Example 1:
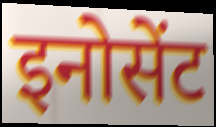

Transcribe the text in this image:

इनोसेंट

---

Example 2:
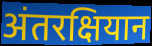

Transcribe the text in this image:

अंतरक्षियान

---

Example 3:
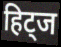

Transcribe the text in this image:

हिट्ज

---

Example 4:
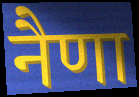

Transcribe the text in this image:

नैणा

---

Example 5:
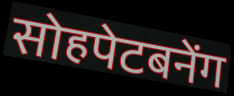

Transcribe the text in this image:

सोहपेटबनेंग